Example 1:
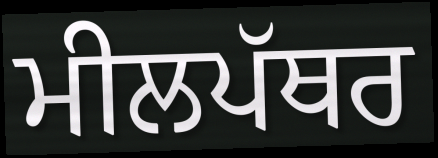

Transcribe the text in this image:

ਮੀਲਪੱਥਰ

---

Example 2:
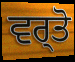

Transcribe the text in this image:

ਵਰ੍ਤੋ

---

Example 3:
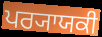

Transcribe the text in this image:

ਪਰ੍ਯਾਯਕੀ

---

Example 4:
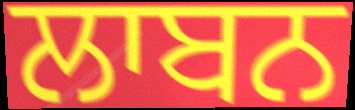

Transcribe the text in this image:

ਲਾਬਨ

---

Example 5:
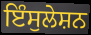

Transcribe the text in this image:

ਇੰਸੁਲੇਸ਼ਨ